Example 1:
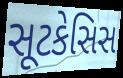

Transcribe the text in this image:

સૂટકેસિસ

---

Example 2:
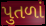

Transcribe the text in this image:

પુતળાં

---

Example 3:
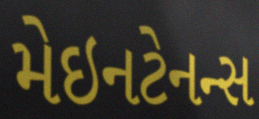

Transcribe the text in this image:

મેઇનટેનન્સ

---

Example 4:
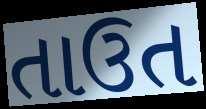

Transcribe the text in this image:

તાઉત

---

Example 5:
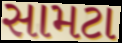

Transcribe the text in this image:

સામટા